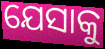
ଯେସାକୁ